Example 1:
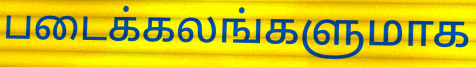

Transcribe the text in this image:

படைக்கலங்களுமாக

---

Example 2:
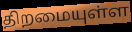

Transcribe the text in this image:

திறமையுள்ள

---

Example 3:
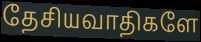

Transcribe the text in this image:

தேசியவாதிகளே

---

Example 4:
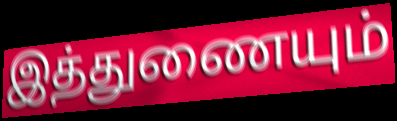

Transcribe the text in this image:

இத்துணையும்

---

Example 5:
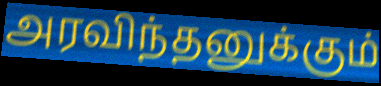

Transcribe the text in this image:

அரவிந்தனுக்கும்